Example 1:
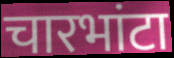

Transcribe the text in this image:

चारभांटा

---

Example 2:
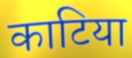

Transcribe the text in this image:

काटिया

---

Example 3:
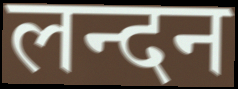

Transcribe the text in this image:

लन्दन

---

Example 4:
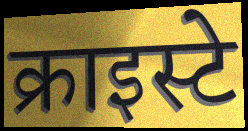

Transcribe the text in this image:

क्राइस्टे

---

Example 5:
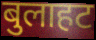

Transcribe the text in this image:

बुलाहट